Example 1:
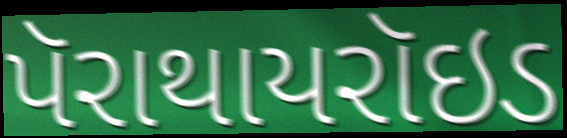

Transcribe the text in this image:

પૅરાથાયરૉઇડ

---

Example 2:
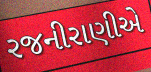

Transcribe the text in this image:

રજનીરાણીએ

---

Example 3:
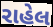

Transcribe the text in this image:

રાહેલ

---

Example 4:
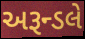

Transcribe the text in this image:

અરૂન્ડલે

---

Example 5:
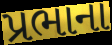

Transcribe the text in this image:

પ્રભાના